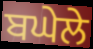
ਬਘੇਲੇ